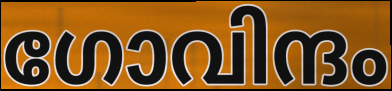
ഗോവിന്ദം